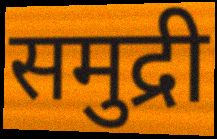
समुद्री